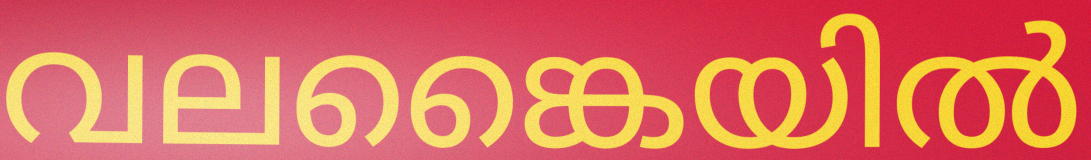
വലങ്കൈയിൽ